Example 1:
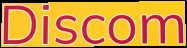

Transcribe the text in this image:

Discom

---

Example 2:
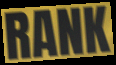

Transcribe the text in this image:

RANK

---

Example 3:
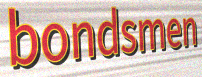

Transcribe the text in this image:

bondsmen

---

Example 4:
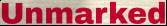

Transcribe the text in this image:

Unmarked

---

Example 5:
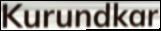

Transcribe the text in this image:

Kurundkar